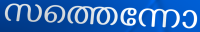
സത്തെന്നോ